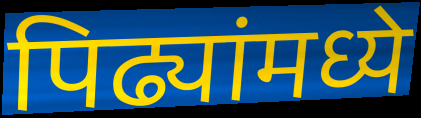
पिढ्यांमध्ये